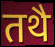
तथै